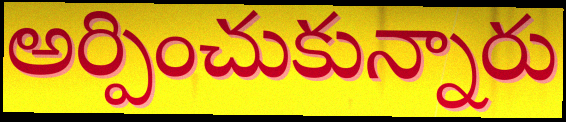
అర్పించుకున్నారు